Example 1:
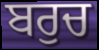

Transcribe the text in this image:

ਬਰੁਚ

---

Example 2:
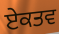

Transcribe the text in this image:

ਏਕਤਵ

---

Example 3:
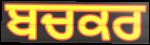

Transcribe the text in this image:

ਬਚਕਰ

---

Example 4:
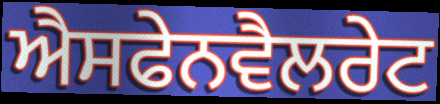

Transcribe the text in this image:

ਐਸਫੇਨਵੈਲਰੇਟ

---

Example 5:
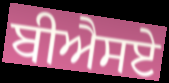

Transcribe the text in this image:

ਬੀਐਸਏ